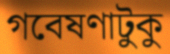
গবেষণাটুকু